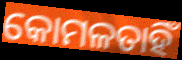
କୋମଳତାହିଁ